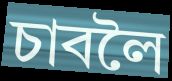
চাবলৈ